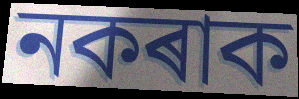
নকৰাক